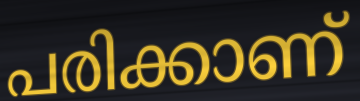
പരിക്കാണ്